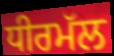
ਧੀਰਮੱਲ